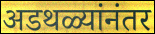
अडथळ्यांनंतर